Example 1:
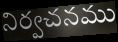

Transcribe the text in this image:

నిర్వచనము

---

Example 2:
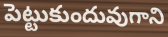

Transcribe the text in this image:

పెట్టుకుందువుగాని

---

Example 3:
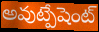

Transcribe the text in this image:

అవుట్పేషెంట్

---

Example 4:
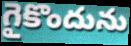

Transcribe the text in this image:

గైకొందును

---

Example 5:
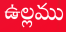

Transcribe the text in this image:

ఉల్లము